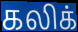
கலிக்